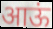
आऊं